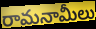
రామనామీలు